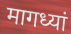
मागध्यां